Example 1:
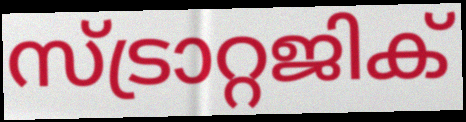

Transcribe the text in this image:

സ്ട്രാറ്റജിക്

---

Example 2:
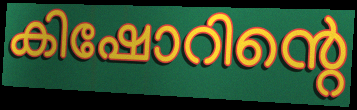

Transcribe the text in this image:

കിഷോറിന്റെ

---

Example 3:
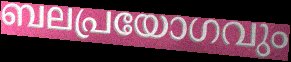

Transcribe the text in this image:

ബലപ്രയോഗവും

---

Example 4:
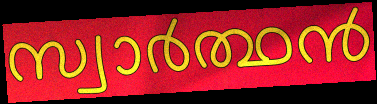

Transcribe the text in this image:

സ്വാർത്ഥൻ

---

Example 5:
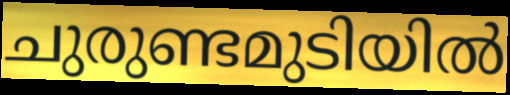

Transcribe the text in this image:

ചുരുണ്ടമുടിയിൽ